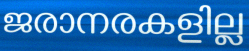
ജരാനരകളില്ല